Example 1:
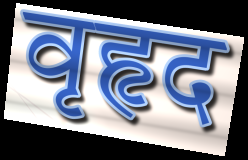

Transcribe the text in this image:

वृहृद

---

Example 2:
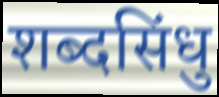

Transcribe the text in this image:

शब्दसिंधु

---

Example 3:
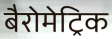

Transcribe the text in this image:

बैरोमेट्रिक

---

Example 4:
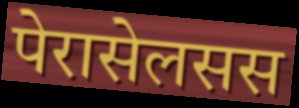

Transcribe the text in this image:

पेरासेलसस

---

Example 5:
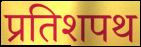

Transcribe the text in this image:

प्रतिशपथ